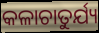
କଳାଚାତୁର୍ଯ୍ୟ